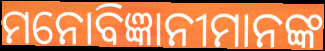
ମନୋବିଜ୍ଞାନୀମାନଙ୍କ